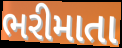
ભરીમાતા